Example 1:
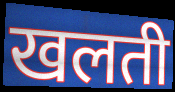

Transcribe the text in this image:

खलती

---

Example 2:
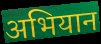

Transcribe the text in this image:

अभियान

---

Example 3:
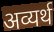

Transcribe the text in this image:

अव्यर्थ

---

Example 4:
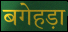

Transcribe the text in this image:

बगेहड़ा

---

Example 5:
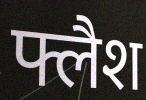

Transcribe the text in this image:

फ्लैश